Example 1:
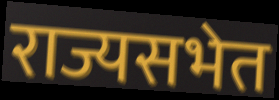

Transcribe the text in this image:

राज्यसभेत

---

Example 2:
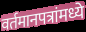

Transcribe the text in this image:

वर्तमानपत्रांमध्ये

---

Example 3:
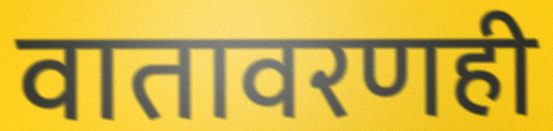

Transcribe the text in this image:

वातावरणही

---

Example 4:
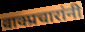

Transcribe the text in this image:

वाक्प्रचारांनी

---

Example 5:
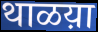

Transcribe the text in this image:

थाळय़ा